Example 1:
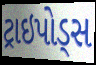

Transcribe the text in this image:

ટ્રાઇપોડ્સ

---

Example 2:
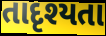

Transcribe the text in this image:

તાદૃશ્યતા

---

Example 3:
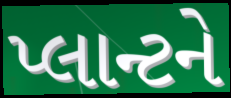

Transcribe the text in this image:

પ્લાન્ટને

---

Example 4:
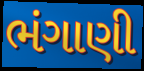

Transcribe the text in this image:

ભંગાણી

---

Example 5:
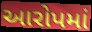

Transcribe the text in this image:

આરોપમાં